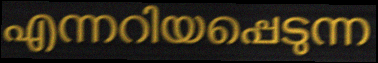
എന്നറിയപ്പെടുന്ന